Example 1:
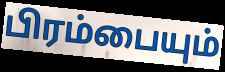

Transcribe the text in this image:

பிரம்பையும்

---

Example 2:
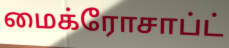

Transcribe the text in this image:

மைக்ரோசாப்ட்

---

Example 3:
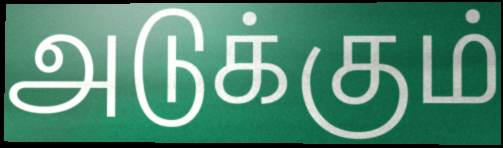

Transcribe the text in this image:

அடுக்கும்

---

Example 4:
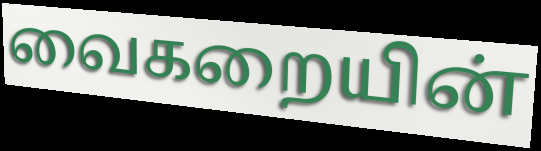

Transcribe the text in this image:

வைகறையின்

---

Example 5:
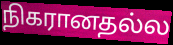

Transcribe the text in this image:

நிகரானதல்ல